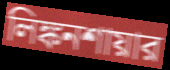
লিঙ্কনশায়ার